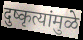
दुष्कृत्यांमुळे